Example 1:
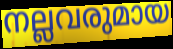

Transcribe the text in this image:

നല്ലവരുമായ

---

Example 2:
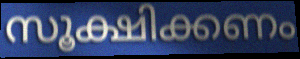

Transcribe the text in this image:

സൂക്ഷിക്കണം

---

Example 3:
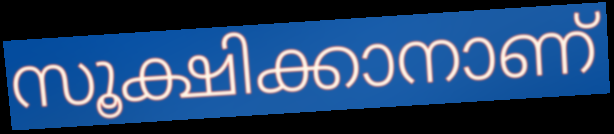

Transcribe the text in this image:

സൂക്ഷിക്കാനാണ്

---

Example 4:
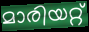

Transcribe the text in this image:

മാരിയറ്റ്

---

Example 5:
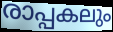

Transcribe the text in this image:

രാപ്പകലും